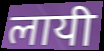
लायी